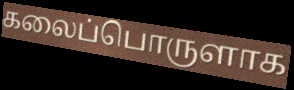
கலைப்பொருளாக